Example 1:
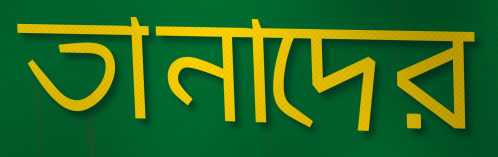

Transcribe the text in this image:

তানাদের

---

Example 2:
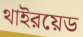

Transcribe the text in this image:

থাইরয়েড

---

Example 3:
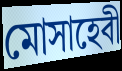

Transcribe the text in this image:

মোসাহেবী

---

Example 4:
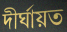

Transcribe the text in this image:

দীর্ঘায়ত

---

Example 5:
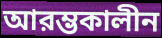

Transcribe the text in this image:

আরম্ভকালীন